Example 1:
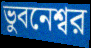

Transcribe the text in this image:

ভুবনেশ্বর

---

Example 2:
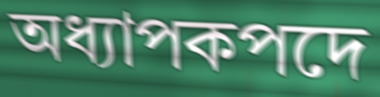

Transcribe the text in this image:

অধ্যাপকপদে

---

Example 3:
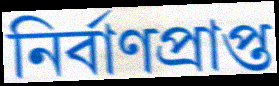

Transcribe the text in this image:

নির্বাণপ্রাপ্ত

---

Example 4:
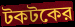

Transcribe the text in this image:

টকটকের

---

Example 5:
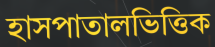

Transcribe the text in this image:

হাসপাতালভিত্তিক